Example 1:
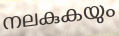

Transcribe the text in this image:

നലകുകയും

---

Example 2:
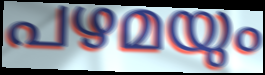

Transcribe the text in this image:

പഴമയും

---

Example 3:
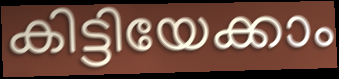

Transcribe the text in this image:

കിട്ടിയേക്കാം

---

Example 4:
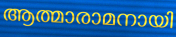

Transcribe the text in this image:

ആത്മാരാമനായി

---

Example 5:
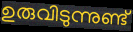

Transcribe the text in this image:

ഉരുവിടുന്നുണ്ട്